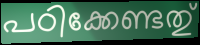
പഠിക്കേണ്ടതു്